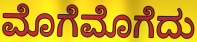
ಮೊಗೆಮೊಗೆದು